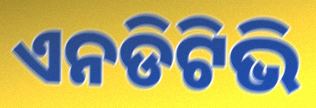
ଏନଡିଟିଭି